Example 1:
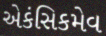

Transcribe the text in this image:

એકંસિકમેવ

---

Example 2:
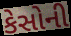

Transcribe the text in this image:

કેસોની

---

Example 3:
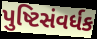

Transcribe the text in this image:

પુષ્ટિસંવર્ધક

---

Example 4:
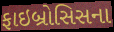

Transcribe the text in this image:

ફાઇબ્રોસિસના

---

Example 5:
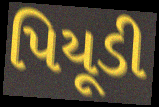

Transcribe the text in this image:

પિયૂડી